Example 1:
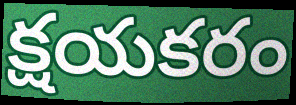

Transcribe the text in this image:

క్షయకరం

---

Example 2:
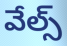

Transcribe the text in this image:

వేల్స్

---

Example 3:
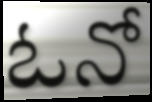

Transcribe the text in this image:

ఓనో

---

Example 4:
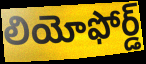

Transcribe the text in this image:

లియోఫోర్డ్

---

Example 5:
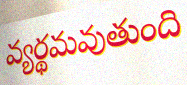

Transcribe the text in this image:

వ్యర్థమవుతుంది